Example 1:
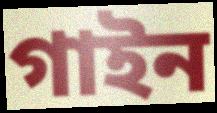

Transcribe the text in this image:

গাইন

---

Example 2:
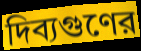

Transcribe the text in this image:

দিব্যগুণের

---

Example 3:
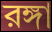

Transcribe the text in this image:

রঙ্গা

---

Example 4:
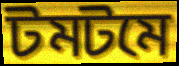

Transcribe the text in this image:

টমটমে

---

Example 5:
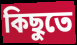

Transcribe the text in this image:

কিছুতে